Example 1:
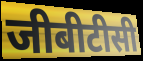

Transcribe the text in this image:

जीबीटीसी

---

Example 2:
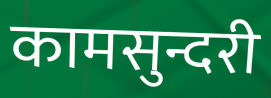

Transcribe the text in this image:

कामसुन्दरी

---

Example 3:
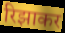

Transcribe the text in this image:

रिझाकर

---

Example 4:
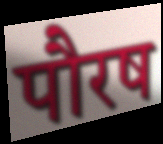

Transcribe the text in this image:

पौरष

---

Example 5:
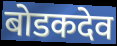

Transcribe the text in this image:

बोडकदेव